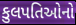
કુલપતિઓનો